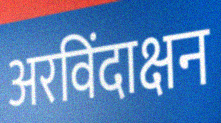
अरविंदाक्षन